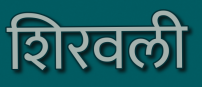
शिरवली